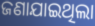
ଜଣାଯାଇଥିଲା